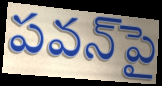
పవన్‌పై